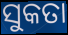
ସୁକତା